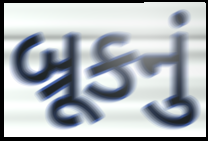
બ્રૂકનું